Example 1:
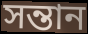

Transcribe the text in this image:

সন্তান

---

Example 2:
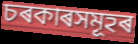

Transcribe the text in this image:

চৰকাৰসমূহৰ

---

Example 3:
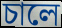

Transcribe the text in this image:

চালে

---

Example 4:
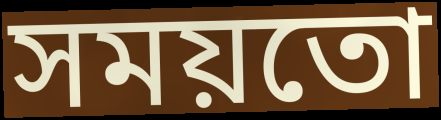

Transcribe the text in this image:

সময়তো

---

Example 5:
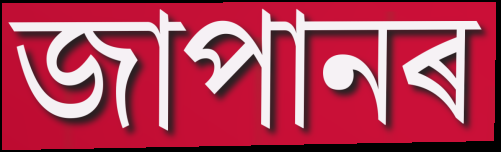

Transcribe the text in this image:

জাপানৰ